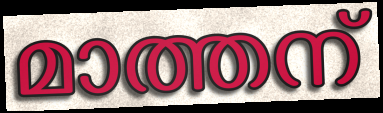
മാത്തന്